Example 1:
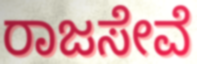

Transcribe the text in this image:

ರಾಜಸೇವೆ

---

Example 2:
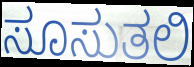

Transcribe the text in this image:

ಸೂಸುತಲಿ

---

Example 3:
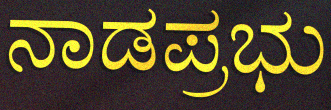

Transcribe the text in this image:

ನಾಡಪ್ರಭು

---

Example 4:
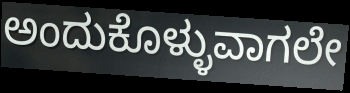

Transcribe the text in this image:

ಅಂದುಕೊಳ್ಳುವಾಗಲೇ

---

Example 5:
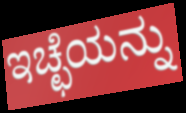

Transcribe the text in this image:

ಇಚ್ಛೆಯನ್ನು